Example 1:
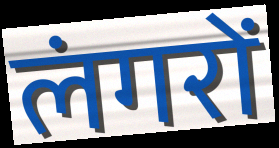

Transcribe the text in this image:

लंगरों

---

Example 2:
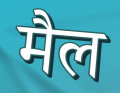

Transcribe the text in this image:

मैल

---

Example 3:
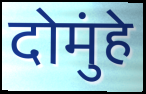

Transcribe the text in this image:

दोमुंहे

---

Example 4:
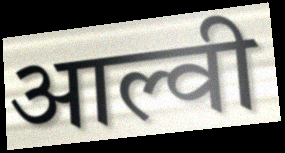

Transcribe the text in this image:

आल्वी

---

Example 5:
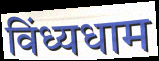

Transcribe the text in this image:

विंध्यधाम